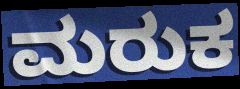
ಮರುಕ